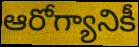
ఆరోగ్యానికీ